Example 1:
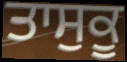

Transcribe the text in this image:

ਤਾਸੁਕੂ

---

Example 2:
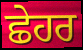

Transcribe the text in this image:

ਛੇਹਰ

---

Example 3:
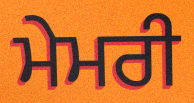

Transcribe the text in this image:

ਮੇਮਰੀ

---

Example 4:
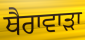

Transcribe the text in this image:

ਥੈਰਾਵਾੜਾ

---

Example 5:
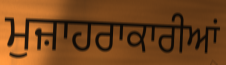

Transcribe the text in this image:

ਮੁਜ਼ਾਹਰਾਕਾਰੀਆਂ